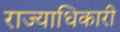
राज्याधिकारी